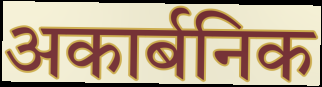
अकार्बनिक